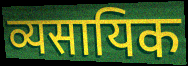
व्यसायिक